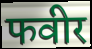
फवीर